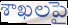
శాఖలపై